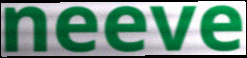
neeve